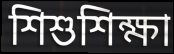
শিশুশিক্ষা